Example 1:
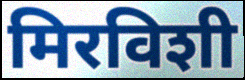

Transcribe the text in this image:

मिरविशी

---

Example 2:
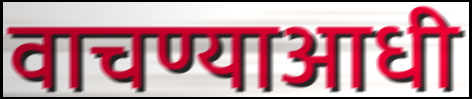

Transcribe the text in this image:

वाचण्याआधी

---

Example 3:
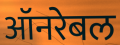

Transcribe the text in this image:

ऑनरेबल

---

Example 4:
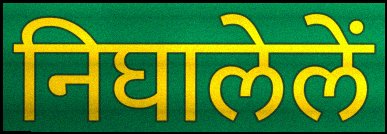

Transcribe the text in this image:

निघालेलें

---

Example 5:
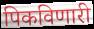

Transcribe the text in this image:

पिकविणारी